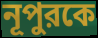
নূপুরকে